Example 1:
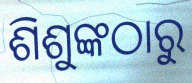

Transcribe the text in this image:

ଶିଶୁଙ୍କଠାରୁ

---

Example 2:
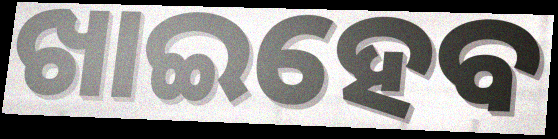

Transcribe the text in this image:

ଖାଇହେବ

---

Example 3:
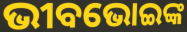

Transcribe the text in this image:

ଭୀବଭୋଇଙ୍କ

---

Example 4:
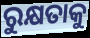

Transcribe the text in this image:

ରୁକ୍ଷତାକୁ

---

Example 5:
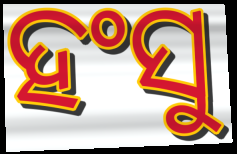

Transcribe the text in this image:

ହଂସୁ